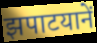
झपाटयानें